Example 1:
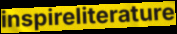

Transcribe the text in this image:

inspireliterature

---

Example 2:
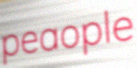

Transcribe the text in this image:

peaople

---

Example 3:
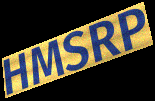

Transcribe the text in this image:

HMSRP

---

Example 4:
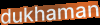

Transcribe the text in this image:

dukhaman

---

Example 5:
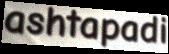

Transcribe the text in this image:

ashtapadi